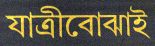
যাত্রীবোঝাই